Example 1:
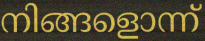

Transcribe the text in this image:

നിങ്ങളൊന്ന്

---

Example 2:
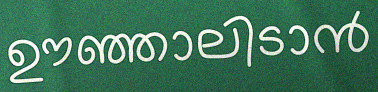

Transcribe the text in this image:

ഊഞ്ഞാലിടാൻ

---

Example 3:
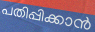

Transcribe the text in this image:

പതിപ്പിക്കാൻ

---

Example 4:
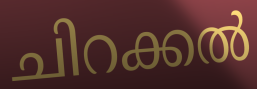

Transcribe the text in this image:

ചിറക്കൽ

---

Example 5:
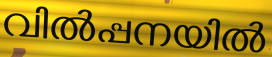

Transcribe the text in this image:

വിൽപ്പനയിൽ